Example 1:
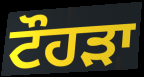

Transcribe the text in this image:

ਟੌਹਡ਼ਾ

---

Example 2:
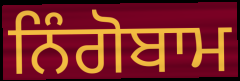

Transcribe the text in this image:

ਨਿੰਗੋਬਾਮ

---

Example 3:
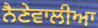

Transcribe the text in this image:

ਨੈਣੇਵਾਲੀਆ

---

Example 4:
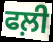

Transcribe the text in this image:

ਫਲ਼ੀ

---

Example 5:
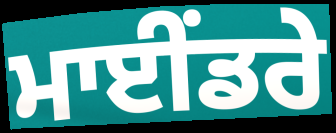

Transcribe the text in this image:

ਮਾਈਂਡਰੇ